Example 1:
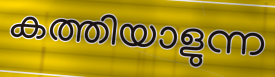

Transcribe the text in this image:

കത്തിയാളുന്ന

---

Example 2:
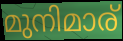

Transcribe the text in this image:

മുനിമാര്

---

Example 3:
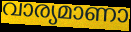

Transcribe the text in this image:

വാര്യമാണാ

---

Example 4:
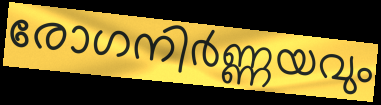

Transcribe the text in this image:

രോഗനിർണ്ണയവും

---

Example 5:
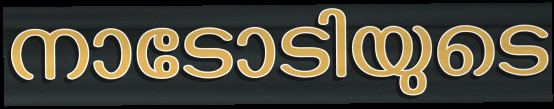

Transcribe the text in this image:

നാടോടിയുടെ